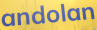
andolan